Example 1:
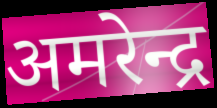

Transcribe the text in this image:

अमरेन्द्र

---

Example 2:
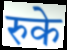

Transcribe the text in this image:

रुके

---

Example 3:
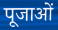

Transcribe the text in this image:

पूजाओं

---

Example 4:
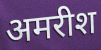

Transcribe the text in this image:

अमरीश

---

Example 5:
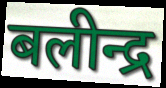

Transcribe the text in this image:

बलीन्द्र